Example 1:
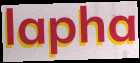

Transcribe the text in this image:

lapha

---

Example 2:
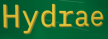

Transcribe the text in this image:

Hydrae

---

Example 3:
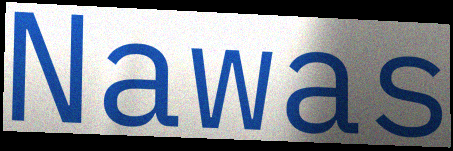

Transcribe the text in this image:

Nawas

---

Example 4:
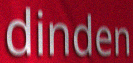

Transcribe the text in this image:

dinden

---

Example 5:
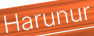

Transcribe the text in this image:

Harunur